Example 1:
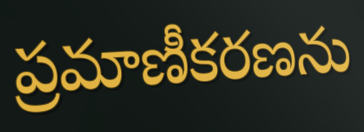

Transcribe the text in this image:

ప్రమాణీకరణను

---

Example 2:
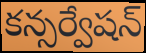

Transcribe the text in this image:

కన్సర్వేషన్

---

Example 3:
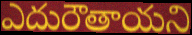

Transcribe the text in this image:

ఎదురౌతాయని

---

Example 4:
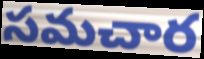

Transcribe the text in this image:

సమచార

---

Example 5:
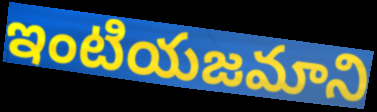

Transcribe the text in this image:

ఇంటియజమాని